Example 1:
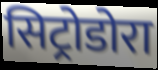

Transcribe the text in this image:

सिट्रोडोरा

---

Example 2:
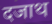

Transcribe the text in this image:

दजाथ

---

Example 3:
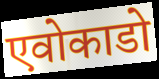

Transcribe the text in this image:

एवोकाडो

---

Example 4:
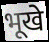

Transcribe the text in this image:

भूखे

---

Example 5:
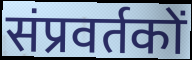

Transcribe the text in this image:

संप्रवर्तकों